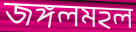
জঙ্গলমহল